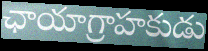
ఛాయాగ్రాహకుడు